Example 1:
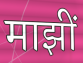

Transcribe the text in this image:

माझीं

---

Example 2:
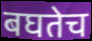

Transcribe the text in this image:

बघतेच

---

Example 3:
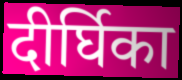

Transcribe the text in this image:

दीर्घिका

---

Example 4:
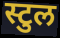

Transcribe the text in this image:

स्टुल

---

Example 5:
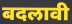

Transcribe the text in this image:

बदलावी